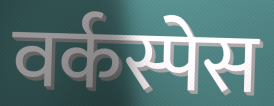
वर्कस्पेस